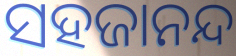
ସହଜାନନ୍ଦ